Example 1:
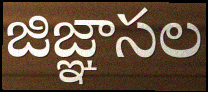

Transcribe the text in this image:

జిజ్ఞాసల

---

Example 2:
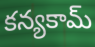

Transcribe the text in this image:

కన్యకామ్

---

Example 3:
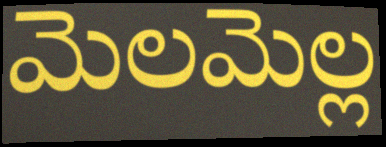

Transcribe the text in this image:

మెలమెల్ల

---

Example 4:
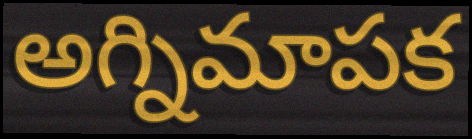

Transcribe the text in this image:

అగ్నిమాపక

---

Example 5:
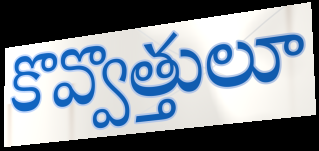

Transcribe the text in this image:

కొవ్వొత్తులూ